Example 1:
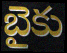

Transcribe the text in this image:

బైకు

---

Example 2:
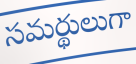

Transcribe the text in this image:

సమర్థులుగా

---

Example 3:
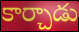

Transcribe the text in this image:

కార్చాడు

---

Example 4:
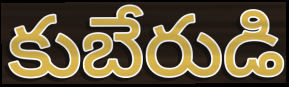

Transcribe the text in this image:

కుబేరుడి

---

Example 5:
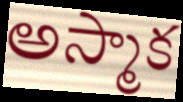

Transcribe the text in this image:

అస్మాక